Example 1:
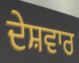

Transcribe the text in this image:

ਦੇਸ਼ਵਾਰ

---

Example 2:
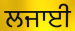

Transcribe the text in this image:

ਲਜਾਈ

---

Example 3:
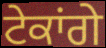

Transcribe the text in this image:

ਟੇਕਾਂਗੇ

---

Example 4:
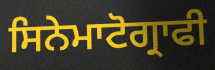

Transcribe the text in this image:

ਸਿਨੇਮਾਟੋਗ੍ਰਾਫੀ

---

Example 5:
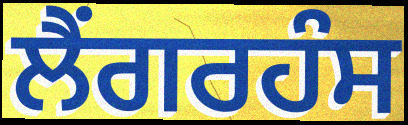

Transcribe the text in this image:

ਲੈਂਗਰਹੰਸ